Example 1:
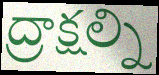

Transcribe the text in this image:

ద్రాక్షల్ని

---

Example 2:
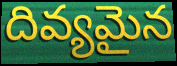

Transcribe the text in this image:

దివ్యమైన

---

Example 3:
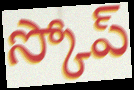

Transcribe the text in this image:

స్కోప్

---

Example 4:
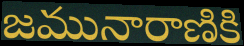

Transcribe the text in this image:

జమునారాణికి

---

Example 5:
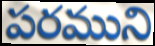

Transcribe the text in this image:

పరముని